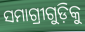
ସମାଗ୍ରୀଗୁଡ଼ିକୁ